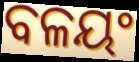
ବଳୟଂ